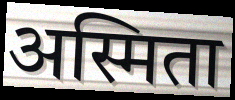
अस्मिता